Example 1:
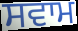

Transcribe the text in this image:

ਸਵਾਮ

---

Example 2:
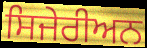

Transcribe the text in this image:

ਸਿਜੇਰੀਅਨ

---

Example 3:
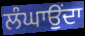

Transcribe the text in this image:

ਲੰਘਾਉਂਦਾ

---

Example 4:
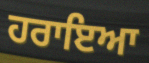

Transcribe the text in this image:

ਹਰਾਇਆ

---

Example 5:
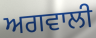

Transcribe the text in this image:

ਅਗਵਾਲੀ